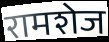
रामशेज